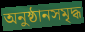
অনুষ্ঠানসমৃদ্ধ